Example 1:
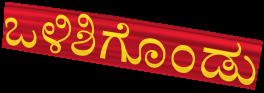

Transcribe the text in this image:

ಒಳಿಶಿಗೊಂಡು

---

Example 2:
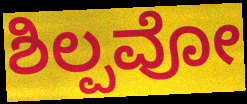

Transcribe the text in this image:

ಶಿಲ್ಪವೋ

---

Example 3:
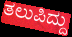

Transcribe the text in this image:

ತಲುಪಿದ್ದು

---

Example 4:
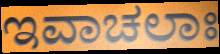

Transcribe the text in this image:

ಇವಾಚಲಾಃ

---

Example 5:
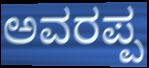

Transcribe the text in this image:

ಅವರಪ್ಪ